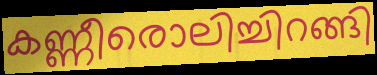
കണ്ണീരൊലിച്ചിറങ്ങി